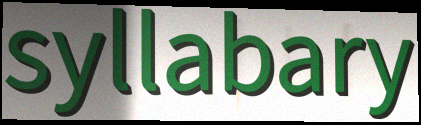
syllabary